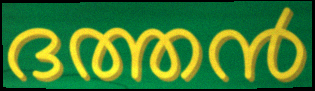
ദത്തൻ